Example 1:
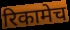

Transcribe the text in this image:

रिकामेच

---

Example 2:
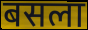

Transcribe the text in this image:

बसला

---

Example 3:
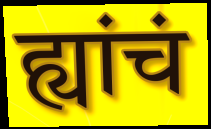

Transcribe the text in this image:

ह्यांचं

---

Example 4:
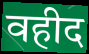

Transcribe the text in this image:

वहीद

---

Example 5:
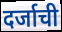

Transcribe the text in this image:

दर्जाची